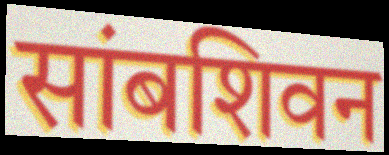
सांबशिवन